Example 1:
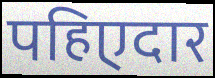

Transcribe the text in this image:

पहिएदार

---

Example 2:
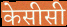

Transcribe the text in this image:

केसीसी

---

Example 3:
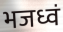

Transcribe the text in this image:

भजध्वं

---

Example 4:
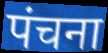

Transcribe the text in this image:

पंचना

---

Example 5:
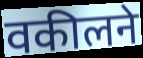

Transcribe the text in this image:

वकीलने